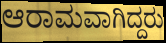
ಆರಾಮವಾಗಿದ್ದರು